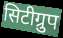
सिटीग्रुप